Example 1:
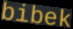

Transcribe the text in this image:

bibek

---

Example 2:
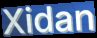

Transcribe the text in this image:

Xidan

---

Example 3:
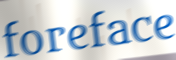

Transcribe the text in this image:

foreface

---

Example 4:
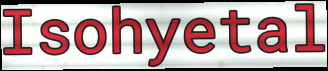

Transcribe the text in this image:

Isohyetal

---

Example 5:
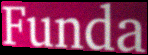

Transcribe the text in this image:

Funda